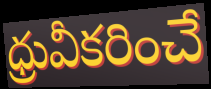
ధ్రువీకరించే